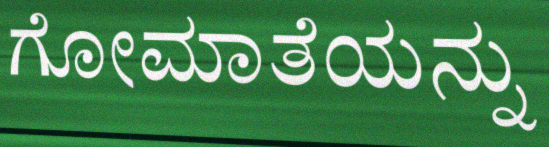
ಗೋಮಾತೆಯನ್ನು